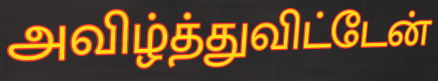
அவிழ்த்துவிட்டேன்